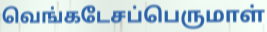
வெங்கடேசப்பெருமாள்